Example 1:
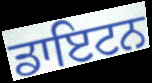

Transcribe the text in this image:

ਡਾਇਟਨ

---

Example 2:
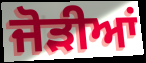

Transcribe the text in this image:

ਜੋਡ਼ੀਆਂ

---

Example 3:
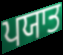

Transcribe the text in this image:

ਪਯਾਤ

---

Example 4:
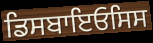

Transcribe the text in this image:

ਡਿਸਬਾਇਓਸਿਸ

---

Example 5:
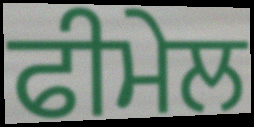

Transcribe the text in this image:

ਫੀਮੇਲ